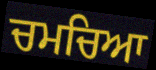
ਚਮਚਿਆ